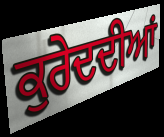
ਕੁਰੇਦਦੀਆਂ